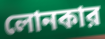
লোনকার